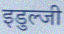
इडुल्जी